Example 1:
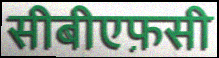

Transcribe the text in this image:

सीबीएफ़सी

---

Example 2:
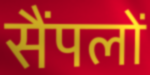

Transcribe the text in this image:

सैंपलों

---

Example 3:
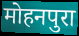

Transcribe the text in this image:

मोहनपुरा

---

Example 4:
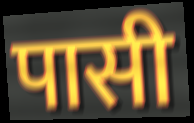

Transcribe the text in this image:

पासी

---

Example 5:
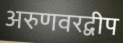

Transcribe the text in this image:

अरुणवरद्वीप